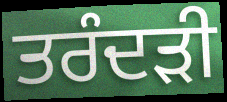
ਤਰੰਦੜੀ